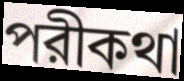
পরীকথা